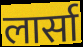
लार्सा